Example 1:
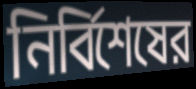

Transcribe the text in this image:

নির্বিশেষের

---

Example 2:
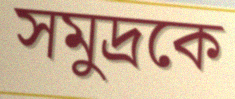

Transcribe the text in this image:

সমুদ্রকে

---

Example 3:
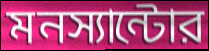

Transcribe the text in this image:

মনস্যান্টোর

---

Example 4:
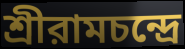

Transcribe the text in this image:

শ্রীরামচন্দ্রে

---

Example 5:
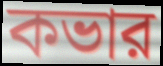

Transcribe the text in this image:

কভার